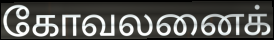
கோவலனைக்